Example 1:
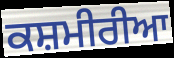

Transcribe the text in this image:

ਕਸ਼ਮੀਰੀਆ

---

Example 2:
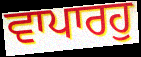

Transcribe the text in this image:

ਵਾਪਾਰਹੁ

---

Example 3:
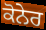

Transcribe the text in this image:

ਕੋਨੇਰ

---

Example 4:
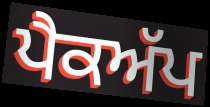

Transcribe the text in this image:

ਪੈਕਅੱਪ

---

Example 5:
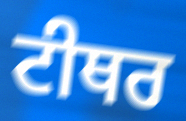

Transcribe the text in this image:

ਟੀਥਰ